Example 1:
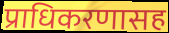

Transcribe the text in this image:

प्राधिकरणासह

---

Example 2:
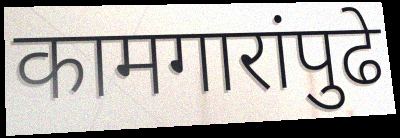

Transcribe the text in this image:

कामगारांपुढे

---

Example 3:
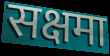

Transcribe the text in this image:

सक्षमा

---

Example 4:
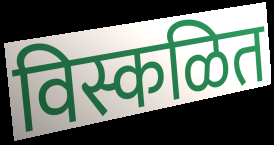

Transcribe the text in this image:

विस्कळित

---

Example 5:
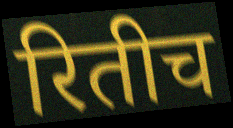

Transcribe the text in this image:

रितीच